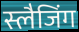
स्लैजिंग